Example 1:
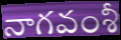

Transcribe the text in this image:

నాగవంశీ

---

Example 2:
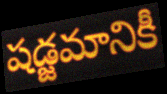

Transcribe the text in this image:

షడ్జమానికీ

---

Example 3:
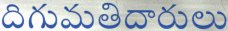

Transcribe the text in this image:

దిగుమతిదారులు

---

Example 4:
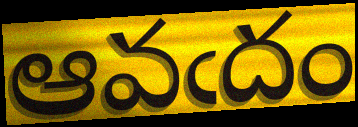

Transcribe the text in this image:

ఆవఁదం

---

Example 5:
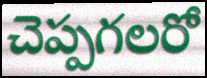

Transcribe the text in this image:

చెప్పగలరో